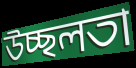
উচ্ছলতা